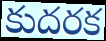
కుదరక